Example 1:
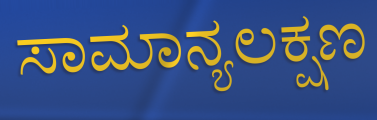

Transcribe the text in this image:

ಸಾಮಾನ್ಯಲಕ್ಷಣ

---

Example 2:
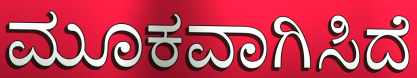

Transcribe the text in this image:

ಮೂಕವಾಗಿಸಿದೆ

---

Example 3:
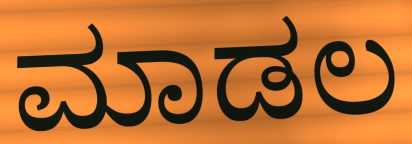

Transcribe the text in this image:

ಮಾಡಲ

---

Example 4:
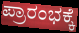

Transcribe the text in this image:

ಪ್ರಾರಂಭಕ್ಕೆ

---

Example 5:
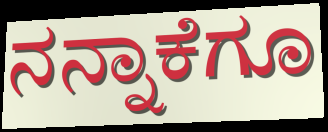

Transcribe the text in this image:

ನನ್ನಾಕೆಗೂ